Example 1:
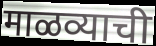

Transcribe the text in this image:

माळव्याची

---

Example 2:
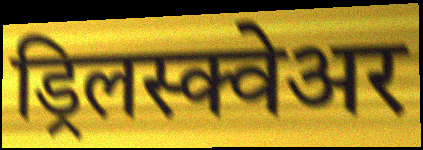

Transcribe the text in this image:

ड्रिलस्क्वेअर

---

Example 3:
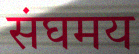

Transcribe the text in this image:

संघमय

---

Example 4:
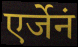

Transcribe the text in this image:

एर्जेनं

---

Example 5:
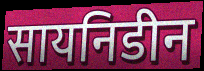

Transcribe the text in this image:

सायनिडीन